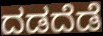
ದಡದೆಡೆ